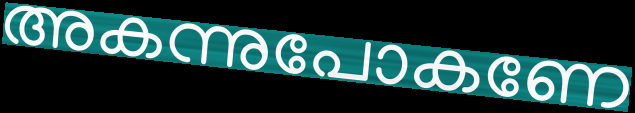
അകന്നുപോകണേ